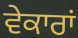
ਵੇਕਾਰਾਂ